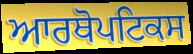
ਆਰਥੋਪਟਿਕਸ